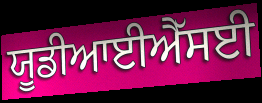
ਯੂਡੀਆਈਐੱਸਈ